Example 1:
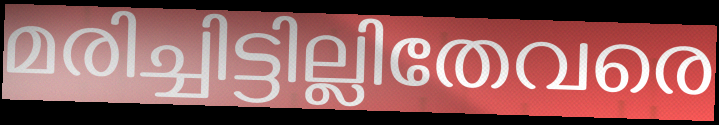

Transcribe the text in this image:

മരിച്ചിട്ടില്ലിതേവരെ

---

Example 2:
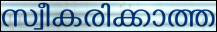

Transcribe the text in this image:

സ്വീകരിക്കാത്ത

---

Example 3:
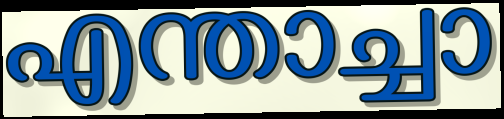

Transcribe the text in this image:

എന്താച്ചാ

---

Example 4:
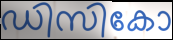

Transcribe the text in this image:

ഡിസികോ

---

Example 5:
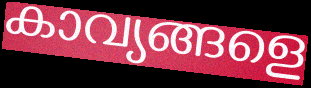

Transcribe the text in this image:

കാവ്യങ്ങളെ